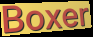
Boxer